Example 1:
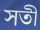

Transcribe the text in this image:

সতী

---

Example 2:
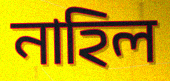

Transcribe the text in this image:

নাহিল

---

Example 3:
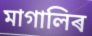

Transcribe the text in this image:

মাগালিৰ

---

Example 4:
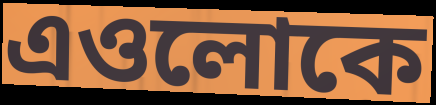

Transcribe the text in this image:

এওলোকে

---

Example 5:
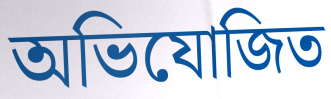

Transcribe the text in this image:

অভিযোজিত